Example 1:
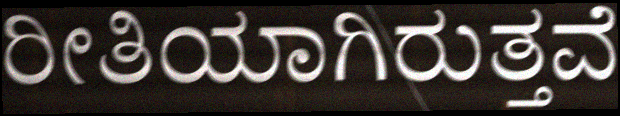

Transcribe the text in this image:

ರೀತಿಯಾಗಿರುತ್ತವೆ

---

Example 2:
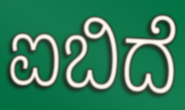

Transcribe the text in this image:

ಐಬಿದೆ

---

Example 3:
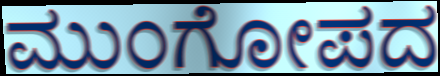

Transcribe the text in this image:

ಮುಂಗೋಪದ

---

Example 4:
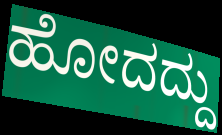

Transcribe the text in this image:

ಹೋದದ್ದು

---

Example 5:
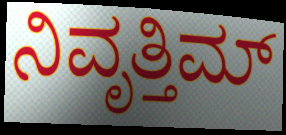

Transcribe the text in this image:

ನಿವೃತ್ತಿಮ್